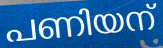
പണിയന്